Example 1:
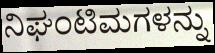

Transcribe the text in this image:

ನಿಘಂಟಿಮಗಳನ್ನು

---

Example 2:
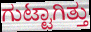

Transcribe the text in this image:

ಗುಟ್ಟಾಗಿತ್ತು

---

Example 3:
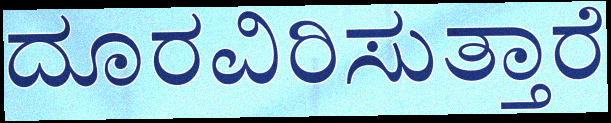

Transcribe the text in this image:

ದೂರವಿರಿಸುತ್ತಾರೆ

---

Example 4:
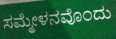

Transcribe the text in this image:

ಸಮ್ಮೇಳನವೊಂದು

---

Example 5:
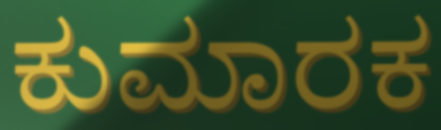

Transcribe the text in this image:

ಕುಮಾರಕ